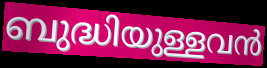
ബുദ്ധിയുള്ളവൻ